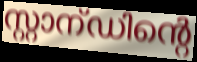
സ്റ്റാന്ഡിന്റെ